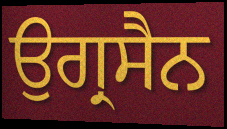
ਉਗ੍ਰਸੈਨ